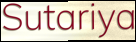
Sutariya